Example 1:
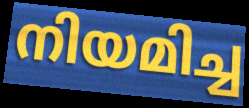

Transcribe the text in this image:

നിയമിച്ച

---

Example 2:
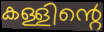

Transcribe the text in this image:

കള്ളിന്റെ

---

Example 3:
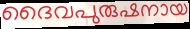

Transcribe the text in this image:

ദൈവപുരുഷനായ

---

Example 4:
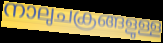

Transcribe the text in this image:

നാലുചക്രങ്ങളുള്ള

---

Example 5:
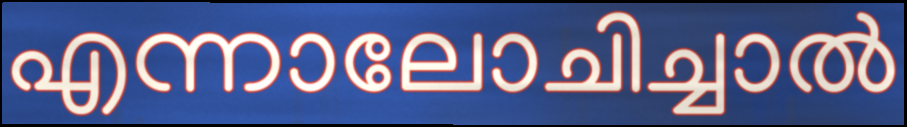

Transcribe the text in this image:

എന്നാലോചിച്ചാൽ